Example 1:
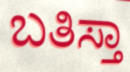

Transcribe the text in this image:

ಬತಿಸ್ತಾ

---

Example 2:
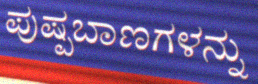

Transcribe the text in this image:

ಪುಷ್ಪಬಾಣಗಳನ್ನು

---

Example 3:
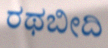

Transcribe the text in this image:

ರಥಬೀದಿ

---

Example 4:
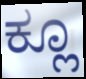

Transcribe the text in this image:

ಕ್ಲೂ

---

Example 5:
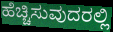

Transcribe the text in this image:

ಹೆಚ್ಚಿಸುವುದರಲ್ಲಿ